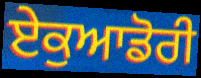
ਏਕੁਆਡੋਰੀ